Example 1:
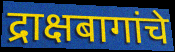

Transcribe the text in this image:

द्राक्षबागांचे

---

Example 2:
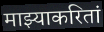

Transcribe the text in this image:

माझ्याकरितां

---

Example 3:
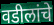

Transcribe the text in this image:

वडीलांचे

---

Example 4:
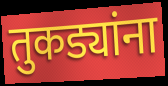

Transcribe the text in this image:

तुकड्यांना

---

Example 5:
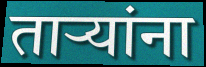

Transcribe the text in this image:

तार्‍यांना